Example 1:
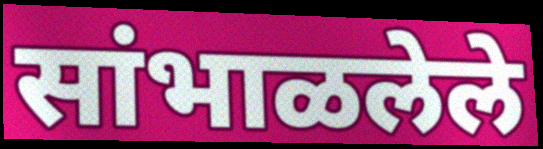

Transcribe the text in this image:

सांभाळलेले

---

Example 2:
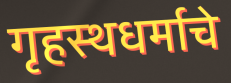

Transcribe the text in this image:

गृहस्थधर्माचे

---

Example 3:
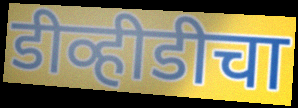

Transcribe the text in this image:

डीव्हीडीचा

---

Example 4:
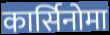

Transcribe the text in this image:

कार्सिनोमा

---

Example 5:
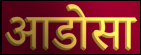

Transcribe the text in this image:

आडोसा